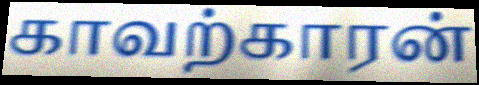
காவற்காரன்